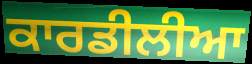
ਕਾਰਡੀਲੀਆ